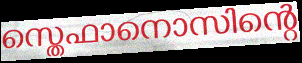
സ്തെഫാനൊസിന്റെ